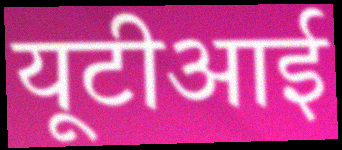
यूटीआई